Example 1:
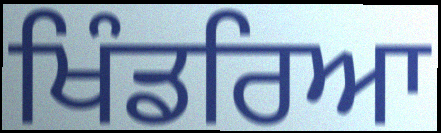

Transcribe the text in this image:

ਖਿੰਡਰਿਆ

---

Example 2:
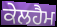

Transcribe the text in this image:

ਕੇਲਹੈਮ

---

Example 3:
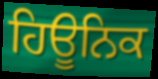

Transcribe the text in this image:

ਹਿਊਨਿਕ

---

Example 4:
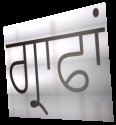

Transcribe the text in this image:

ਗ੍ਰਾਫਾਂ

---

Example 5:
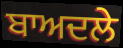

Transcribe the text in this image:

ਬਾਅਦਲੇ